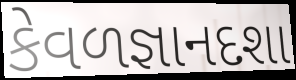
કેવળજ્ઞાનદશા